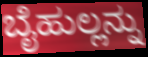
ಬೈಹುಲ್ಲನ್ನು